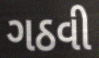
ગઠવી